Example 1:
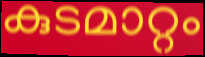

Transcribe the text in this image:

കുടമാറ്റം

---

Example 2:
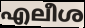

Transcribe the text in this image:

എലീശ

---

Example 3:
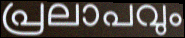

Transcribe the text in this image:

പ്രലാപവും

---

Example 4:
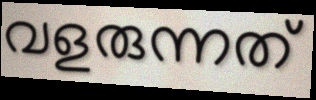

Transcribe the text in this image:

വളരുന്നത്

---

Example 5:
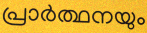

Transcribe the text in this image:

പ്രാർത്ഥനയും